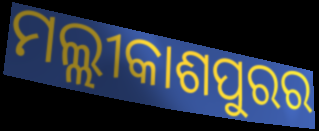
ମଲ୍ଲୀକାଶପୁରର